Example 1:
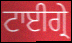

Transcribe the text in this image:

ਟਾਈਗ੍ਰੇ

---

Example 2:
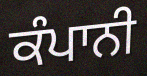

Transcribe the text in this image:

ਕੰਪਾਨੀ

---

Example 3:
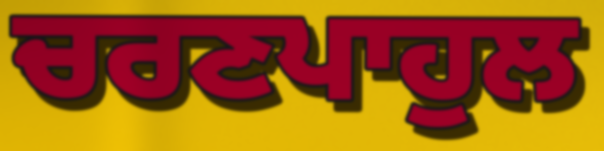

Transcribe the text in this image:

ਚਰਣਪਾਹੁਲ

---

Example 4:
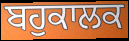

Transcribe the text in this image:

ਬਹੁਕਾਲਕ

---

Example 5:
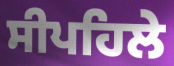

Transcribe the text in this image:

ਸੀਪਹਿਲੇ